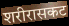
शरीरासकट